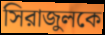
সিরাজুলকে